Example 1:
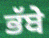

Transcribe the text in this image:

ਭੱਬੇ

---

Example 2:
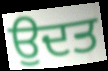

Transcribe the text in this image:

ਉਦਤ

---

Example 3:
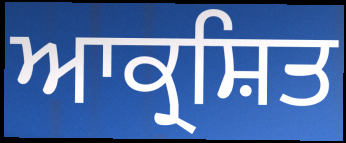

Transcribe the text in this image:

ਆਕ੍ਰਸ਼ਿਤ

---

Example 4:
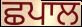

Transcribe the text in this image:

ਛਪਾਲ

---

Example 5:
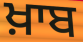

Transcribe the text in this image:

ਖ਼ਾਬ